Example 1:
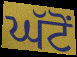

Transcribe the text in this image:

ਘੱਟੋਂ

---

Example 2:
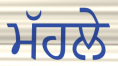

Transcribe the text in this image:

ਮੱਹਲੇ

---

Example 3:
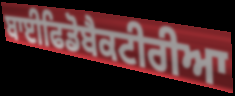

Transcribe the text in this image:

ਬਾਈਫਿਡੋਬੈਕਟੀਰੀਆ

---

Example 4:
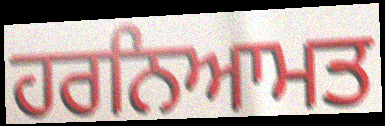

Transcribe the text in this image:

ਹਰਨਿਆਮਤ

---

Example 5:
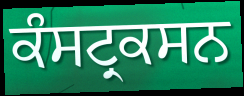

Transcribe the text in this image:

ਕੰਸਟ੍ਰਕਸਨ